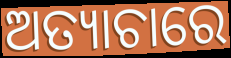
ଅତ୍ୟାଚାରେ